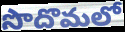
సొదొమలో